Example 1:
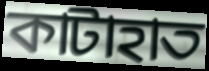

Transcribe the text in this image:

কাটাহাত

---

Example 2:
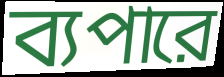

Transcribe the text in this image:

ব্যপারে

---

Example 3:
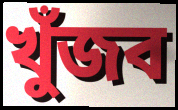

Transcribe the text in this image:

খুঁজব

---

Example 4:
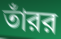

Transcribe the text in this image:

তাঁরর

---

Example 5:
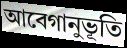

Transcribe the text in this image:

আবেগানুভূতি